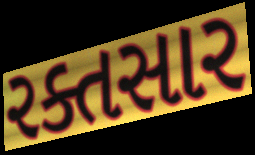
રક્તસાર